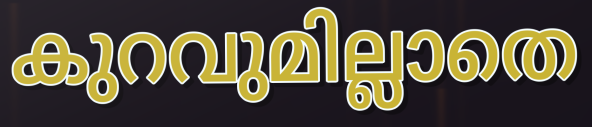
കുറവുമില്ലാതെ